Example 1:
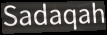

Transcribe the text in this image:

Sadaqah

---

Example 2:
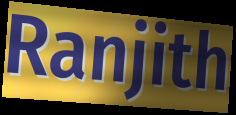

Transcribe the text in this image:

Ranjith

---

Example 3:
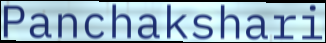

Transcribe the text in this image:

Panchakshari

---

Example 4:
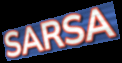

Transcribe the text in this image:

SARSA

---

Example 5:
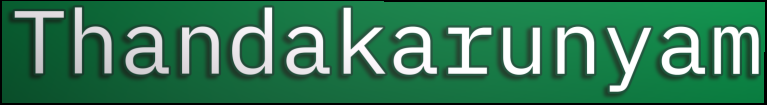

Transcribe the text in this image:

Thandakarunyam